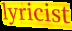
lyricist